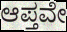
ಆಪ್ತವೇ